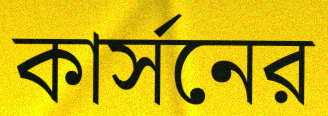
কার্সনের